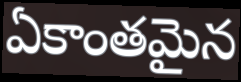
ఏకాంతమైన